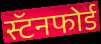
स्टॅनफोर्ड